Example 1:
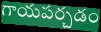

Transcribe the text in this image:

గాయపర్చడం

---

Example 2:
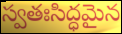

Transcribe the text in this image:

స్వతఃసిద్ధమైన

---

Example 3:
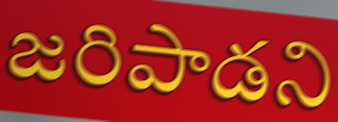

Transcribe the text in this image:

జరిపాడని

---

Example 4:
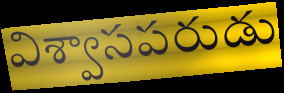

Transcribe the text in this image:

విశ్వాసపరుడు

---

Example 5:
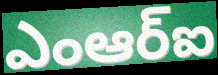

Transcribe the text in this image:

ఎంఆర్ఐ